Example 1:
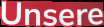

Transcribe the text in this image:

Unsere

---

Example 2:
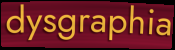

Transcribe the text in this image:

dysgraphia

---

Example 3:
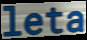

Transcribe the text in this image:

leta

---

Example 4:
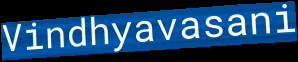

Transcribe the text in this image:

Vindhyavasani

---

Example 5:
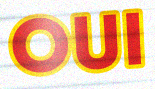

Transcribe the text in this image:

OUI